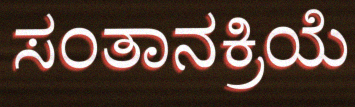
ಸಂತಾನಕ್ರಿಯೆ